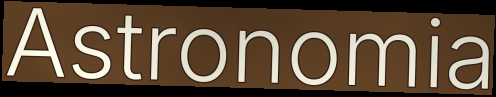
Astronomia